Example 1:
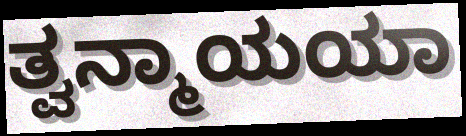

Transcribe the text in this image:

ತ್ವನ್ಮಾಯಯಾ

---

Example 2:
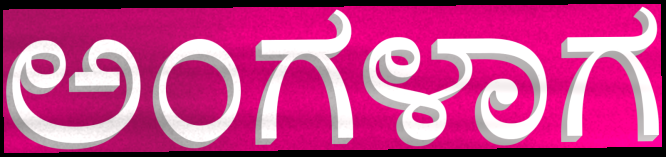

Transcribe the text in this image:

ಅಂಗಳಾಗ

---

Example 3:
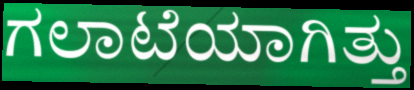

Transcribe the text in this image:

ಗಲಾಟೆಯಾಗಿತ್ತು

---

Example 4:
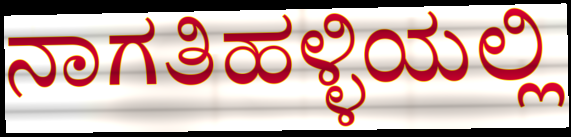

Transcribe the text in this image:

ನಾಗತಿಹಳ್ಳಿಯಲ್ಲಿ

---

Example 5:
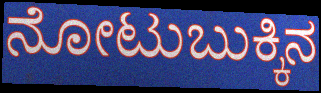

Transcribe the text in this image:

ನೋಟುಬುಕ್ಕಿನ